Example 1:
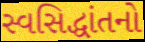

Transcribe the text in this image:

સ્વસિદ્ધાંતનો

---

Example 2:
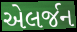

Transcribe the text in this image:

એલર્જન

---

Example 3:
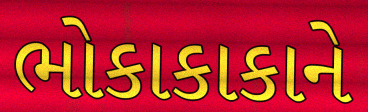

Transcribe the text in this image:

ભોકાકાકાને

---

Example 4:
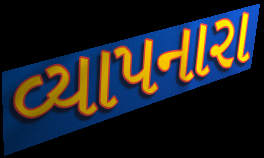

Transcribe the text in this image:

વ્યાપનારા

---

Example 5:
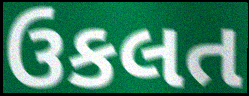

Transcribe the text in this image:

ઉકલત